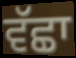
ਵੱਛਾ